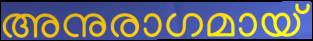
അനുരാഗമായ്